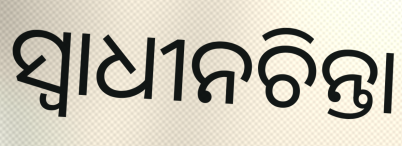
ସ୍ୱାଧୀନଚିନ୍ତା